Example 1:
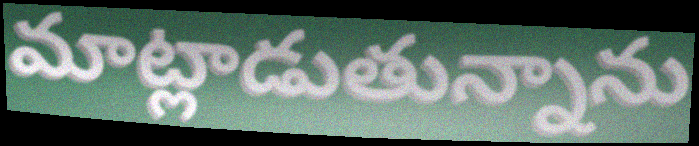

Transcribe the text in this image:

మాట్లాడుతున్నాను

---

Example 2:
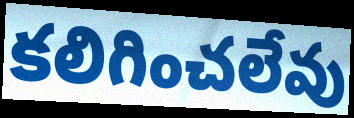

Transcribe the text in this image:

కలిగించలేవు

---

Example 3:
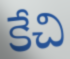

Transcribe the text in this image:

కేచి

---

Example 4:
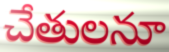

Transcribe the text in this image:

చేతులనూ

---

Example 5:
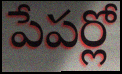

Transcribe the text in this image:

పేపర్లో